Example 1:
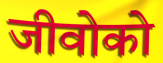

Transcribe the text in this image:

जीवोको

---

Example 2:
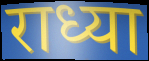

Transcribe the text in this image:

राध्या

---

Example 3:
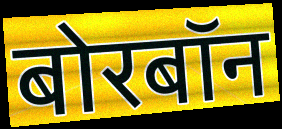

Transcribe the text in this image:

बोरबॉन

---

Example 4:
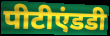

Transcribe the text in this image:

पीटीएंडडी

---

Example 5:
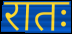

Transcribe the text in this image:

रातः